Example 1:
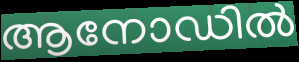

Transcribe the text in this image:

ആനോഡിൽ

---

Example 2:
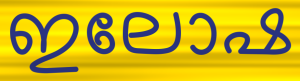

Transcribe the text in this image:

ഇലോഷ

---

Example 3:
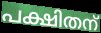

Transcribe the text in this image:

പക്ഷിതന്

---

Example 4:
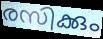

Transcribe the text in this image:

രസിക്കും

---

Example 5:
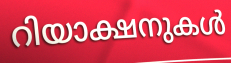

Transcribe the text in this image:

റിയാക്ഷനുകൾ